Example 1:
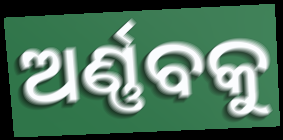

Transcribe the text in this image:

ଅର୍ଣ୍ଣବକୁ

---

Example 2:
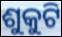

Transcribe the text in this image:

ଶୁକୁଟି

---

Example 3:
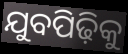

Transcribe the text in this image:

ଯୁବପିଢ଼ିକୁ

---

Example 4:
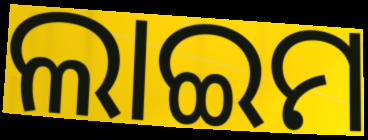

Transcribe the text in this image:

ଲାଇମ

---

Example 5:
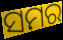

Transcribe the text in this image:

ସମର